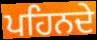
ਪਹਿਨਦੇ